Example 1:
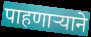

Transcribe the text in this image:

पाहणार्‍याने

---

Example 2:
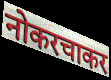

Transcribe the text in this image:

नोकरचाकर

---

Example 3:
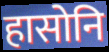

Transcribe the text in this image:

हासोनि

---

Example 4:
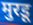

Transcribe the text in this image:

मुरडू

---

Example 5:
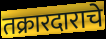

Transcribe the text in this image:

तक्रारदाराचे